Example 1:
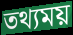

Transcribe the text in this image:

তথ্যময়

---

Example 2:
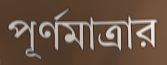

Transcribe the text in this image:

পূর্ণমাত্রার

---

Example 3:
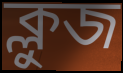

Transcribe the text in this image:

ক্লুজ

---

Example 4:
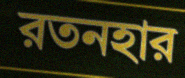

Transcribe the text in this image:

রতনহার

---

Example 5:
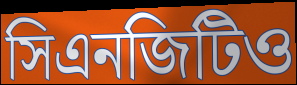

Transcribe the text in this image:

সিএনজিটিও